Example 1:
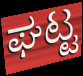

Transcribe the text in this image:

ಘಟ್ಟ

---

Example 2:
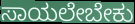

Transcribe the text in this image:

ಸಾಯಲೇಬೇಕು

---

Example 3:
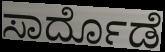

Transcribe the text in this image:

ಸಾರ್ದೊಡೆ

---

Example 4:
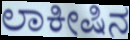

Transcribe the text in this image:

ಲಾಕೀಷಿನ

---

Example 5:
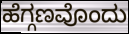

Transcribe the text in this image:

ಹೆಗ್ಗಣವೊಂದು